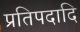
प्रतिपदादि